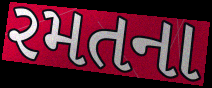
રમતના